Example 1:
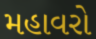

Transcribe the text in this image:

મહાવરો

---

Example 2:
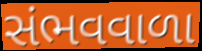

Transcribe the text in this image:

સંભવવાળા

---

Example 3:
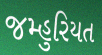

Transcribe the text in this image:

જમ્હુરિયત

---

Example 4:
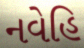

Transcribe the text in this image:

નવેહિ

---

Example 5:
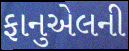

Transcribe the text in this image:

ફાનુએલની